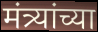
मंत्र्यांच्या